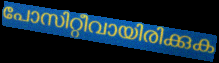
പോസിറ്റീവായിരിക്കുക